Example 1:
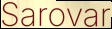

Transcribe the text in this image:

Sarovar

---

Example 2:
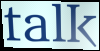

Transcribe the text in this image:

talk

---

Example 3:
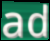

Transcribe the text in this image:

ad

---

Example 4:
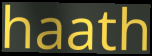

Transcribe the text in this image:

haath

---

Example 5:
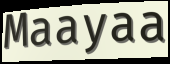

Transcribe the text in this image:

Maayaa